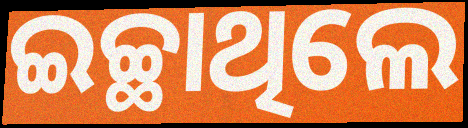
ଇଚ୍ଛାଥିଲେ